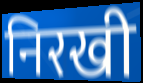
निरखी